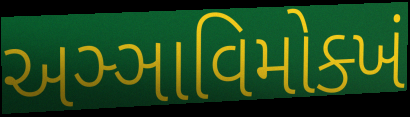
અઞ્ઞાવિમોક્ખં